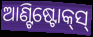
ଆଣ୍ଟିଷ୍ଟୋକ୍‍ସ୍